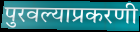
पुरवल्याप्रकरणी